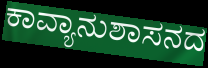
ಕಾವ್ಯಾನುಶಾಸನದ